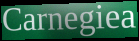
Carnegiea